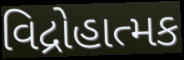
વિદ્રોહાત્મક